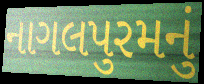
નાગલપુરમનું